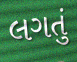
લગતું